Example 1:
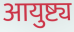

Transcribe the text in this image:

आयुष्ट्य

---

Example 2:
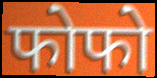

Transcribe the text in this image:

फोफो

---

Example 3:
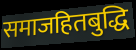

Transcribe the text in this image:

समाजहितबुद्धि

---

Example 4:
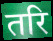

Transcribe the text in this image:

तरि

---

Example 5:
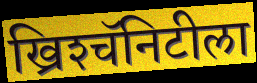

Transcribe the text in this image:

ख्रिश्चॅनिटीला